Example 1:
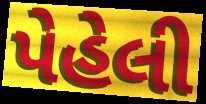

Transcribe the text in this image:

પેહેલી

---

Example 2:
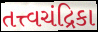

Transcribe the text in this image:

તત્ત્વચંદ્રિકા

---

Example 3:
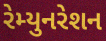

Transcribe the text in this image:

રેમ્યુનરેશન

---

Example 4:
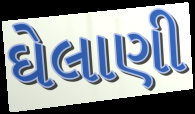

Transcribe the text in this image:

ઘેલાણી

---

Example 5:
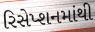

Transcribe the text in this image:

રિસેપ્શનમાંથી